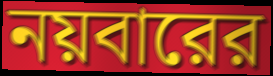
নয়বারের